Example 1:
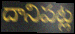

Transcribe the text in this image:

దానిపట్ల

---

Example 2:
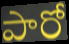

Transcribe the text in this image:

పారో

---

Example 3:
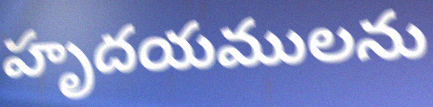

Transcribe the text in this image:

హృదయములను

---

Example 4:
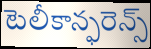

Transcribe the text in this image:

టెలీకాన్ఫరెన్స్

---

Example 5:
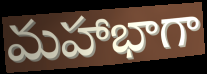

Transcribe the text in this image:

మహాభాగా